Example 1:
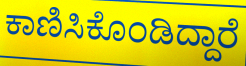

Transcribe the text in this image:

ಕಾಣಿಸಿಕೊಂಡಿದ್ದಾರೆ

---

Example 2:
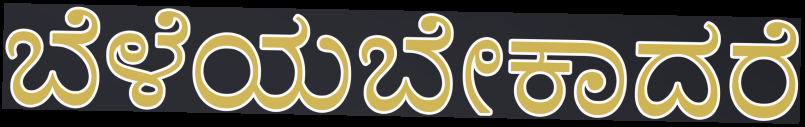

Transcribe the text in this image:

ಬೆಳೆಯಬೇಕಾದರೆ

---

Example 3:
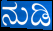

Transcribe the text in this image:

ನುಡಿ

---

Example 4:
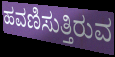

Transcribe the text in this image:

ಹವಣಿಸುತ್ತಿರುವ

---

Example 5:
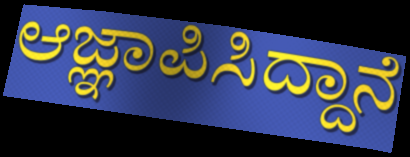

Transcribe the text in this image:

ಆಜ್ಞಾಪಿಸಿದ್ದಾನೆ